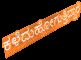
ಕಳೆದುಹೋಗುತ್ತಿದ್ದಾರೆ